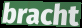
bracht